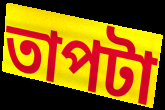
তাপটা